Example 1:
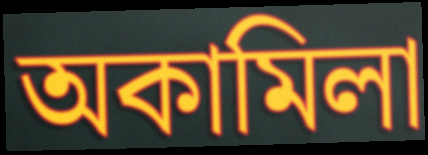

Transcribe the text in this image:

অকামিলা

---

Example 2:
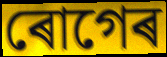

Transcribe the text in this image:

ৰোগেৰ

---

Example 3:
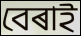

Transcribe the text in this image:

বেৰাই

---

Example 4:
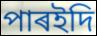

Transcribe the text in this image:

পাৰইদি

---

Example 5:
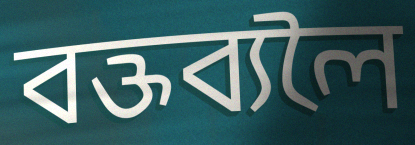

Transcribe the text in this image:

বক্তব্যলৈ